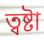
ত্বষ্টা